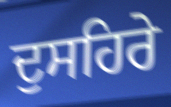
ਦੁਸਹਿਰੇ